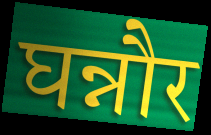
घन्नौर